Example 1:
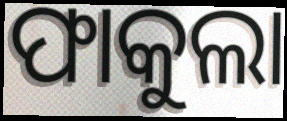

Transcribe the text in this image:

ଫାକୁଲା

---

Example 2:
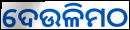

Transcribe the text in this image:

ଦେଉଳିମଠ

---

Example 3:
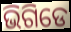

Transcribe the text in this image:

ଭିଗିଡେ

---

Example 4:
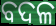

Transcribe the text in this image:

ବଦଳ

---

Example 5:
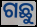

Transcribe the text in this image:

ଗଛୁ